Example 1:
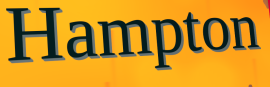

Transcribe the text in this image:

Hampton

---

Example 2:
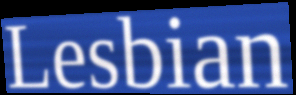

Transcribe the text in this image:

Lesbian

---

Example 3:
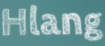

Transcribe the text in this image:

Hlang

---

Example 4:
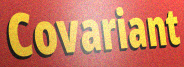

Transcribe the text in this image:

Covariant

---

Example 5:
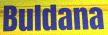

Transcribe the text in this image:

Buldana